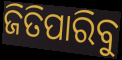
ଜିତିପାରିବୁ